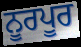
ਨੂਰਪੂਰ